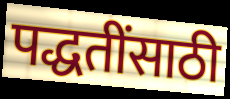
पद्धतींसाठी